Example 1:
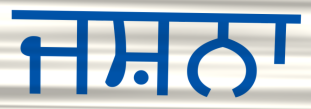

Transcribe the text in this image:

ਜਸ਼ਨਾ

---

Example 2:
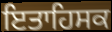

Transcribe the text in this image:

ਇਤਾਹਿਸਕ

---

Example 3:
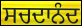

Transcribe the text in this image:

ਸਚਦਾਨੰਦ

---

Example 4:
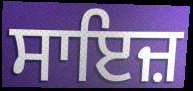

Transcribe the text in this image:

ਸਾਇਜ਼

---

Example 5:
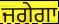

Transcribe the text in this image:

ਜਗੇਗਾ